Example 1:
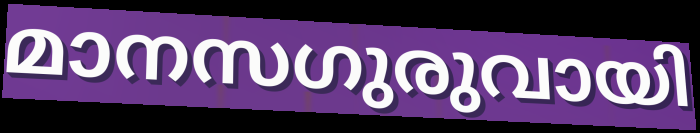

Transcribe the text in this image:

മാനസഗുരുവായി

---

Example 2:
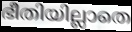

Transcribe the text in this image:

ഭീതിയില്ലാതെ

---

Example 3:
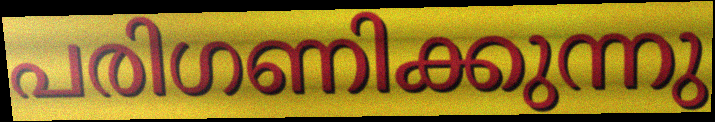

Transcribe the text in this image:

പരിഗണിക്കുന്നു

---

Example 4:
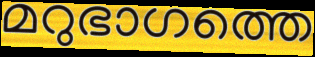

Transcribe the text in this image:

മറുഭാഗത്തെ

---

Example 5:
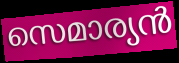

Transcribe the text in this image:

സെമാര്യൻ